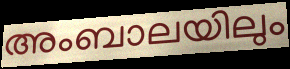
അംബാലയിലും